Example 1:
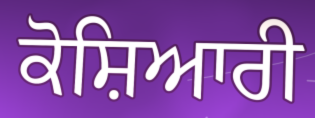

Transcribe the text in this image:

ਕੋਸ਼ਿਆਰੀ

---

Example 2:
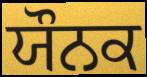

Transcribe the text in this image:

ਯੌਨਕ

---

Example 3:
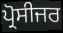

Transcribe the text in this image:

ਪ੍ਰੋਸੀਜਰ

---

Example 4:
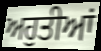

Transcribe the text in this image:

ਅਹੁਤੀਆਂ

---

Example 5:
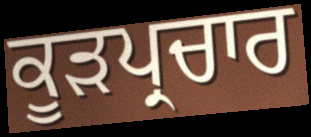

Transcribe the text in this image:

ਕੂੜਪ੍ਰਚਾਰ